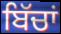
ਬਿੱਚਾਂ